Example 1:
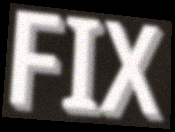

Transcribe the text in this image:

FIX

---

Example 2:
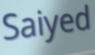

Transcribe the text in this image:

Saiyed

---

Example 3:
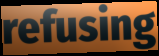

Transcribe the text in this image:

refusing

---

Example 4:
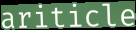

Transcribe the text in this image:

ariticle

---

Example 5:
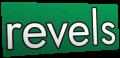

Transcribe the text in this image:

revels